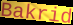
Bakrid